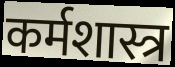
कर्मशास्त्र